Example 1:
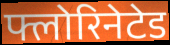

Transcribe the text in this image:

फ्लोरिनेटेड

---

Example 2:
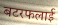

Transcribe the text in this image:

बटरफलाई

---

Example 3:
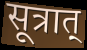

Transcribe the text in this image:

सूत्रात्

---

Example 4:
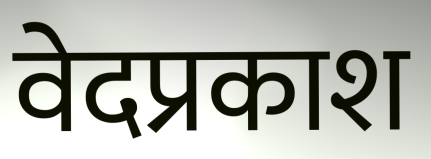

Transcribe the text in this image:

वेदप्रकाश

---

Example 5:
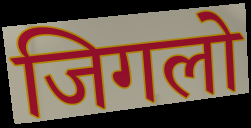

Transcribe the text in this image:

जिगलो